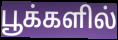
பூக்களில்